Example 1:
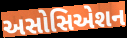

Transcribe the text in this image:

અસોસિએશન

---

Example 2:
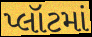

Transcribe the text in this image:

પ્લૉટમાં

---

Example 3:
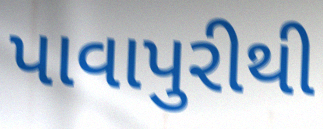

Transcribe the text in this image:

પાવાપુરીથી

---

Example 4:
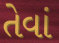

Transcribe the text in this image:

તેવાં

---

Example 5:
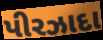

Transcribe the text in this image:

પીરઝાદા